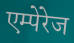
एम्पेरेज